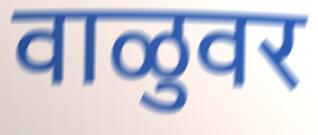
वाळुवर